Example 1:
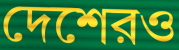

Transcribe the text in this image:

দেশেরও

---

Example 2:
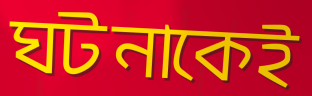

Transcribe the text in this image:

ঘটনাকেই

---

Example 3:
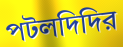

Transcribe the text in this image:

পটলদিদির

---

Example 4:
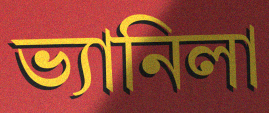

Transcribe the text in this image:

ভ্যানিলা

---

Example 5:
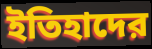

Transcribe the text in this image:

ইতিহাদের